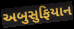
અબુસુફિયાન